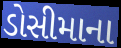
ડોસીમાના